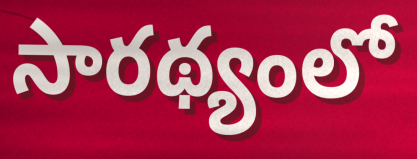
సారథ్యంలో